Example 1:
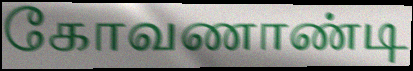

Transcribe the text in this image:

கோவணாண்டி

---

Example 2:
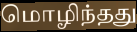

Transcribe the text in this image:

மொழிந்தது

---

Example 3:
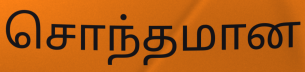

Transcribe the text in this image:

சொந்தமான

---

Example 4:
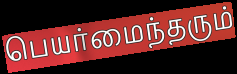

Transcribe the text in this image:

பெயர்மைந்தரும்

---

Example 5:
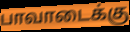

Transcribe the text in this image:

பாவாடைக்கு